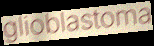
glioblastoma